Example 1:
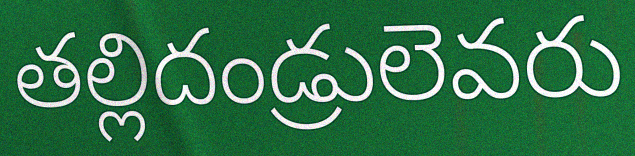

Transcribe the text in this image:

తల్లిదండ్రులెవరు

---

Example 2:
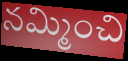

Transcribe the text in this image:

నమ్మించి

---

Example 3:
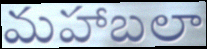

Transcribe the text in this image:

మహాబలా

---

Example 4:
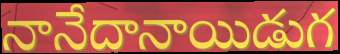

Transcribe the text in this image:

నానేదానాయిడుగ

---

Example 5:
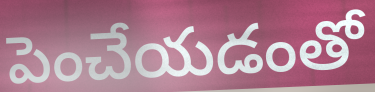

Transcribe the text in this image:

పెంచేయడంతో